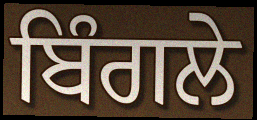
ਬਿੰਗਲੇ